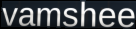
vamshee